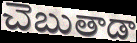
చెబుతాడా